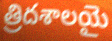
త్రిదశాలయై